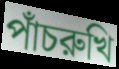
পাঁচরুখি